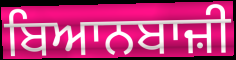
ਬਿਆਨਬਾਜ਼ੀ